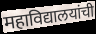
महाविद्यालयांची